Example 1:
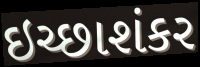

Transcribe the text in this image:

ઇચ્છાશંકર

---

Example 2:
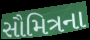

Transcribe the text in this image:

સૌમિત્રના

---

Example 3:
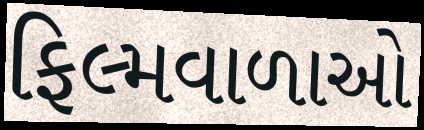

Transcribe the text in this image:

ફિલ્મવાળાઓ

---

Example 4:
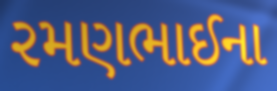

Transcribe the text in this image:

રમણભાઈના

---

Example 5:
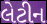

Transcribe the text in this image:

લેટીન